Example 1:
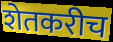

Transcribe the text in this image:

शेतकरीच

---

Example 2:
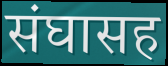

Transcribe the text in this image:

संघासह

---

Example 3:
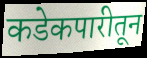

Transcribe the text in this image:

कडेकपारीतून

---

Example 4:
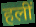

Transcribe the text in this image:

हलीं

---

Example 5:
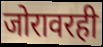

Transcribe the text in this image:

जोरावरही